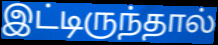
இட்டிருந்தால்